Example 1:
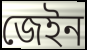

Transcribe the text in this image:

জেইন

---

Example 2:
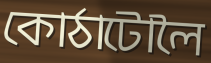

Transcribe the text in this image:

কোঠাটোলৈ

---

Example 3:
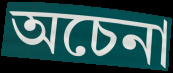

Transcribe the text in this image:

অচেনা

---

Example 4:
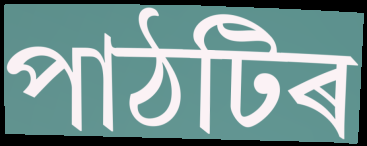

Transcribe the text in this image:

পাঠটিৰ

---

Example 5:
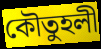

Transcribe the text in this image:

কৌতুহলী